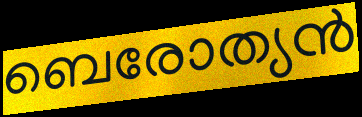
ബെരോത്യൻ